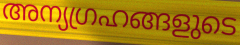
അന്യഗ്രഹങ്ങളുടെ